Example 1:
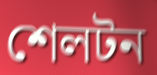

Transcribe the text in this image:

শেলটন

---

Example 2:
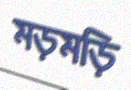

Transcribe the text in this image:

মড়মড়ি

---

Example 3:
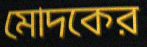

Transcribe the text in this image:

মোদকের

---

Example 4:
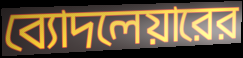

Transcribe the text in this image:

ব্যোদলেয়ারের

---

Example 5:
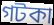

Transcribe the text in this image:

গটকা